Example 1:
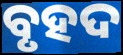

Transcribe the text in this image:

ବୃହଦ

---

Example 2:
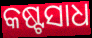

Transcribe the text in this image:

କଷ୍ଟସାଧ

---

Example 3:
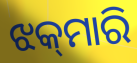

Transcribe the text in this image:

ଝକ୍‌ମାରି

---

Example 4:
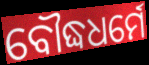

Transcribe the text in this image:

ବୌଦ୍ଧଧର୍ମେ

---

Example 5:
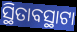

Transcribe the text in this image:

ସ୍ଥିତାବସ୍ଥାଟା